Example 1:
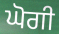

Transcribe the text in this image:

ਘੋਗੀ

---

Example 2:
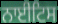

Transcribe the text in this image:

ਨਾਈਟਿਸ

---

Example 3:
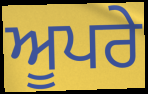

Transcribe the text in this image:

ਅੂਪਰੇ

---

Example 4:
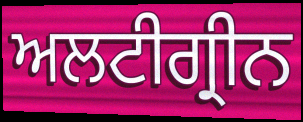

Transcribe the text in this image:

ਅਲਟੀਗ੍ਰੀਨ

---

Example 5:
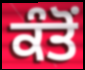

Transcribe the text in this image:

ਕੰਤੋਂ